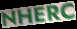
NHERC